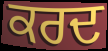
ਕਰਦ